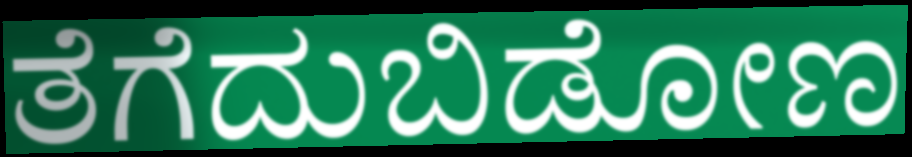
ತೆಗೆದುಬಿಡೋಣ